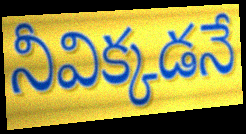
నీవిక్కడనే